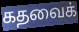
கதவைக்